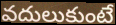
వదులుకుంటే